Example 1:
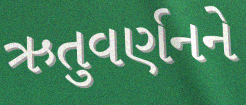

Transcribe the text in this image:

ઋતુવર્ણનને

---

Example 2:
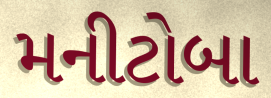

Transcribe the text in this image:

મનીટોબા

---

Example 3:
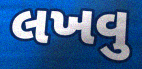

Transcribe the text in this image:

લખવુ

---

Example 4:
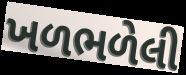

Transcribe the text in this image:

ખળભળેલી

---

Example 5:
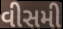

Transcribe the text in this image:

વીસમી